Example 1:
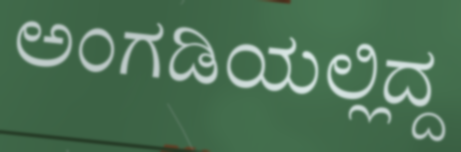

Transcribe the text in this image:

ಅಂಗಡಿಯಲ್ಲಿದ್ದ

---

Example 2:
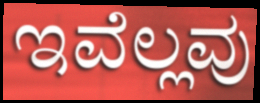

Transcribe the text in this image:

ಇವೆಲ್ಲವು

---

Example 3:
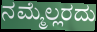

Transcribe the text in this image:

ನಮ್ಮೆಲ್ಲರದು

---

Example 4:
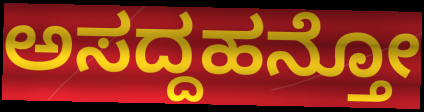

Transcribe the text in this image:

ಅಸದ್ದಹನ್ತೋ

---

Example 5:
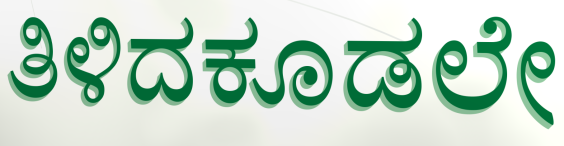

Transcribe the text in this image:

ತಿಳಿದಕೂಡಲೇ